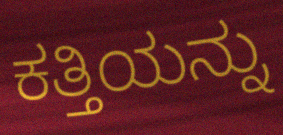
ಕತ್ತಿಯನ್ನು